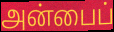
அன்பைப்